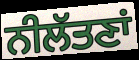
ਨੀਲੱਤਣਾਂ